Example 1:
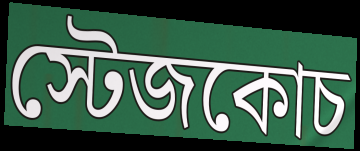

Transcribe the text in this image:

স্টেজকোচ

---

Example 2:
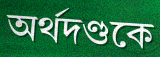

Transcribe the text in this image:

অর্থদণ্ডকে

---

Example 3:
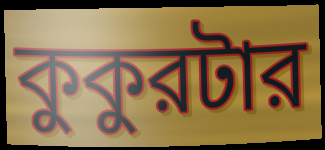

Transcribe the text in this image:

কুকুরটার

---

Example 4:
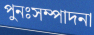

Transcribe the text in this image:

পুনঃসম্পাদনা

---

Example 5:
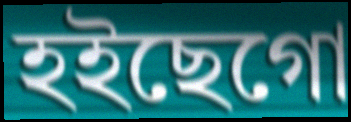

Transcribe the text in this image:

হইছেগো